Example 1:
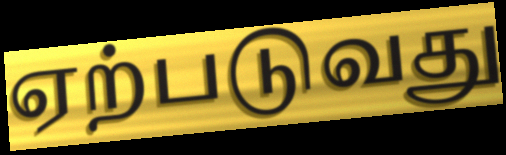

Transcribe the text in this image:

ஏற்படுவது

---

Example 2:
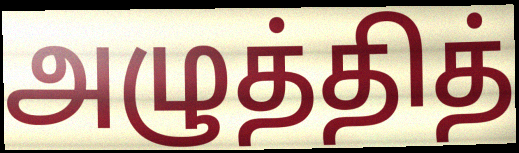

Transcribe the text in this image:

அழுத்தித்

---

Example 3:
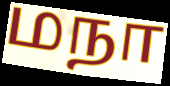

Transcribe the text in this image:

மநா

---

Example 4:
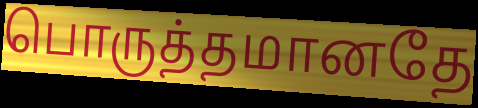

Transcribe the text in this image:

பொருத்தமானதே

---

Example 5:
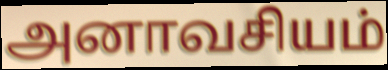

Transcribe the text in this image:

அனாவசியம்